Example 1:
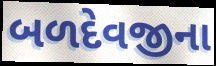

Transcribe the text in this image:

બળદેવજીના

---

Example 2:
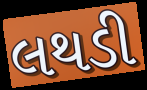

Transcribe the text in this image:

લથડી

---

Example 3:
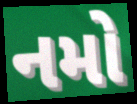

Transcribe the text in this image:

નમો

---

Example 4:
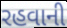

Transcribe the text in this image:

રહવાની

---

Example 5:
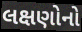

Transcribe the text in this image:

લક્ષણોનો